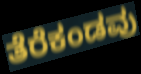
ತೆರೆಕಂಡವು